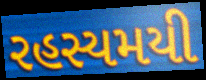
રહસ્યમયી